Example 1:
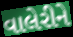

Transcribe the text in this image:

વાલેરીને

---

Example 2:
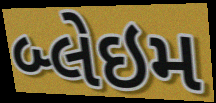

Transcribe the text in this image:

બ્લેઇમ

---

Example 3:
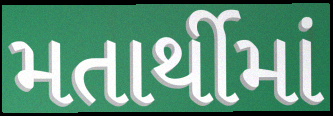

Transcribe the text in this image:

મતાર્થીમાં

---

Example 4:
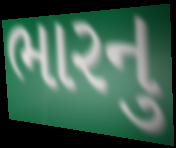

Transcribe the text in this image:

ભારનુ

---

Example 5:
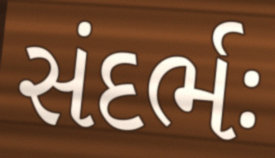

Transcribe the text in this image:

સંદર્ભઃ